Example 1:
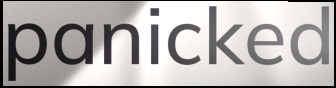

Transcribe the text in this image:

panicked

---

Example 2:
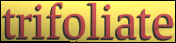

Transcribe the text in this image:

trifoliate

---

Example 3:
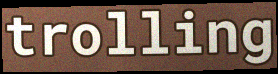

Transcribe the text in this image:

trolling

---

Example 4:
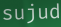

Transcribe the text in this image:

sujud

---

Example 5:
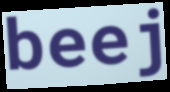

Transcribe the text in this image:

beej